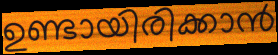
ഉണ്ടായിരിക്കാൻ